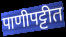
पाणीपट्टीत